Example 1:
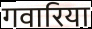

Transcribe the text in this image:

गवारिया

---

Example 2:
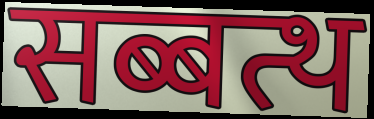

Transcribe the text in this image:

सब्बत्थ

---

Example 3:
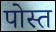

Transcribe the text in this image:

पोस्त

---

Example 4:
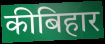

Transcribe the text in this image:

कीबिहार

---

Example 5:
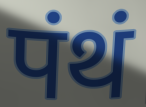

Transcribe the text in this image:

पंथं